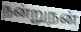
நன்றுநன்